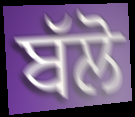
ਬੱਲੋ